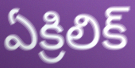
ఏక్రిలిక్